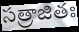
సత్రాజితః